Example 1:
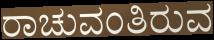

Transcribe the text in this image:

ರಾಚುವಂತಿರುವ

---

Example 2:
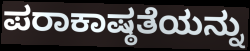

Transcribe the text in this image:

ಪರಾಕಾಷ್ಠತೆಯನ್ನು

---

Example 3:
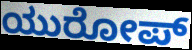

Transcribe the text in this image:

ಯುರೋಪ್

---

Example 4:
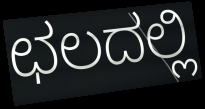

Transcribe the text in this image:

ಛಲದಲ್ಲಿ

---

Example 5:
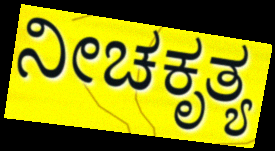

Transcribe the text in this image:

ನೀಚಕೃತ್ಯ